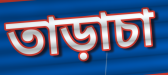
তাড়াচা